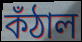
কঁঠাল